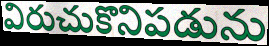
విరుచుకొనిపడును